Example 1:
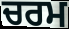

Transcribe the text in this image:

ਚਰਮ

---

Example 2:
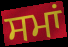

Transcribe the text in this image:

ਸਮਾਂ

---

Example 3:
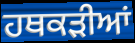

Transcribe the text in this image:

ਹਥਕੜੀਆਂ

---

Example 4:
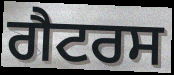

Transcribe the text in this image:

ਗੈਟਰਸ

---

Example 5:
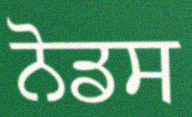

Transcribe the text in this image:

ਨੋਡਸ